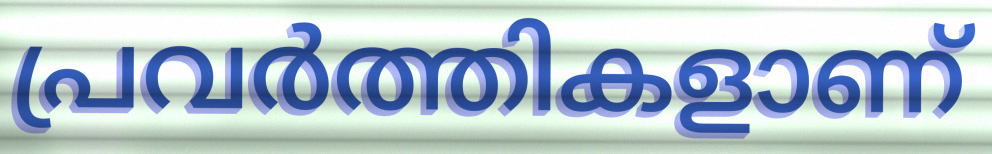
പ്രവർത്തികളാണ്